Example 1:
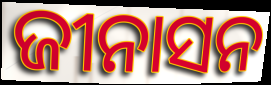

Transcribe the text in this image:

ଜୀନାସନ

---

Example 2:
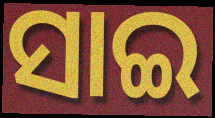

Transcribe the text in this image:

ସାଇ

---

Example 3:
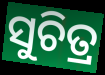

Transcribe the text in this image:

ସୁଚିତ୍ର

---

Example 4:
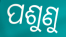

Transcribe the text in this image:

ପଶୁଣୁ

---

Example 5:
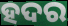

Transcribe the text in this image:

ହଦର